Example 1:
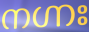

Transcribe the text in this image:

നഗ്നഃ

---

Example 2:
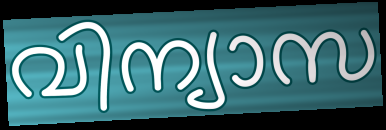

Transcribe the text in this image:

വിന്യാസ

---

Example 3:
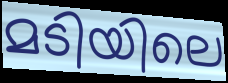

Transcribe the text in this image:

മടിയിലെ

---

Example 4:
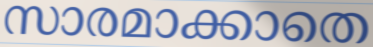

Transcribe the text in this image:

സാരമാക്കാതെ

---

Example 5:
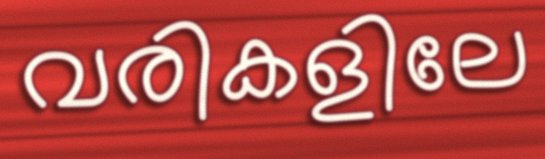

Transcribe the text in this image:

വരികളിലേ